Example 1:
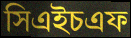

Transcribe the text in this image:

সিএইচএফ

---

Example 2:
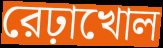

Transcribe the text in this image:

রেঢ়াখোল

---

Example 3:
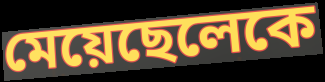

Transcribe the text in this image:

মেয়েছেলেকে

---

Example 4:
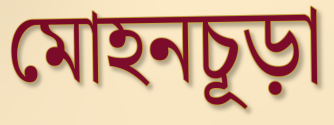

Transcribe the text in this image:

মোহনচূড়া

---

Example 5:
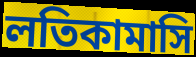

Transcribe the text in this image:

লতিকামাসি